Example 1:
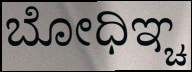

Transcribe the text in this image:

ಬೋಧಿಞ್ಚ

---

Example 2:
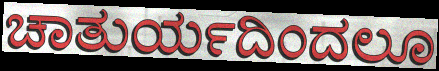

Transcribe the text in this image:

ಚಾತುರ್ಯದಿಂದಲೂ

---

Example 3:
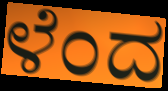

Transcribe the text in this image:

ಳೆಂದ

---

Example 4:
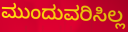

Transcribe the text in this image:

ಮುಂದುವರಿಸಿಲ್ಲ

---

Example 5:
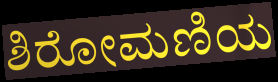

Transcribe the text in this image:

ಶಿರೋಮಣಿಯ